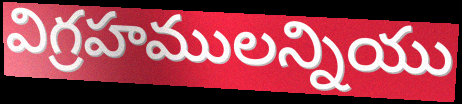
విగ్రహములన్నియు